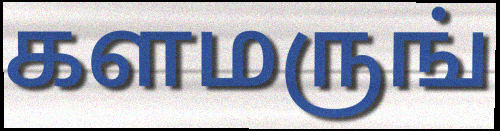
களமருங்